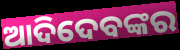
ଆଦିଦେବଙ୍କର